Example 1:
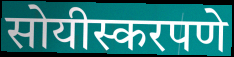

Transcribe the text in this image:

सोयीस्करपणे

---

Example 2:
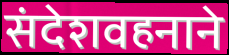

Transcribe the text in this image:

संदेशवहनाने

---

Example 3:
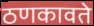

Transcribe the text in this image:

ठणकावते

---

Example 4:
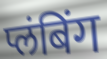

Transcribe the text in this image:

प्लंबिंग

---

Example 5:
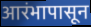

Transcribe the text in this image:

आरंभापासून